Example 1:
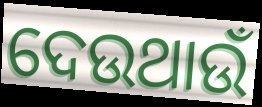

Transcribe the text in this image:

ଦେଉଥାଉଁ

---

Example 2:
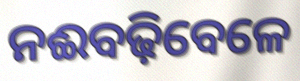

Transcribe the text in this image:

ନଈବଢ଼ିବେଳେ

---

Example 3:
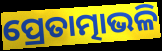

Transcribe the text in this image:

ପ୍ରେତାତ୍ମାଭଳି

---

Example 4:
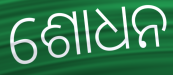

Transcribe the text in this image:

ଶୋଧନ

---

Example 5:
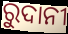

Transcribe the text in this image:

ରୁଦାନୀ